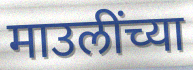
माउलींच्या